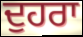
ਦੁਹਰਾ